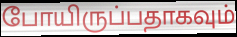
போயிருப்பதாகவும்